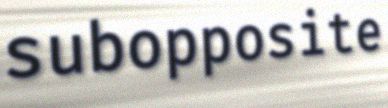
subopposite